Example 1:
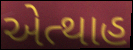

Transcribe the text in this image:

એત્થાહ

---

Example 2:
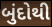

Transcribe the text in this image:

બુંદોથી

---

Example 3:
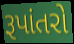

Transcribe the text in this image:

રૂપાંતરો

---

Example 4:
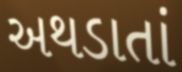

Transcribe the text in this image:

અથડાતાં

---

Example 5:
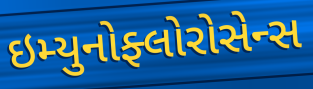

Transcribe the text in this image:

ઇમ્યુનોફ્લોરોસેન્સ